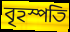
বৃহস্পতি